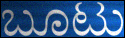
ಬೂಟು